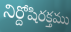
నిర్దోషిరక్తము